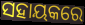
ସହାୟକରେ